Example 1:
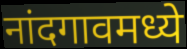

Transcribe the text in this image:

नांदगावमध्ये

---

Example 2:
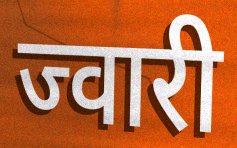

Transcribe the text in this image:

ज्वारी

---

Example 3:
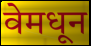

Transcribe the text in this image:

वेमधून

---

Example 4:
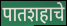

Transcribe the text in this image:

पातशहाचे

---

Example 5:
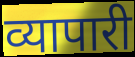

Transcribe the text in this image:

व्यापारी